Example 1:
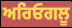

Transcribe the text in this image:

ਅਰਿਓਗਲੂ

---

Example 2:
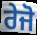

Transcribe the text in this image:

ਰੇਜੋ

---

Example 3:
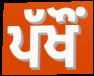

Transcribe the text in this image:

ਪੱਖੌਂ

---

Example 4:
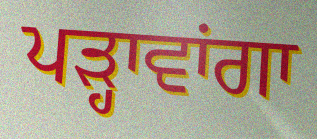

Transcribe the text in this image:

ਪੜ੍ਹਾਵਾਂਗਾ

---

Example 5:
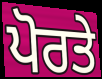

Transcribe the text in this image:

ਪੋਰਤੇ